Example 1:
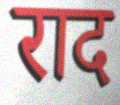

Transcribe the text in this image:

राद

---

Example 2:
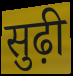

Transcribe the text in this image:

सुढ़ी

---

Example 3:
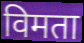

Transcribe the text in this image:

विमता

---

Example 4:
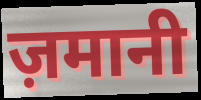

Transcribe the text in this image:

ज़मानी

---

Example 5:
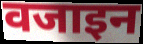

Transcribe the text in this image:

वजाइन